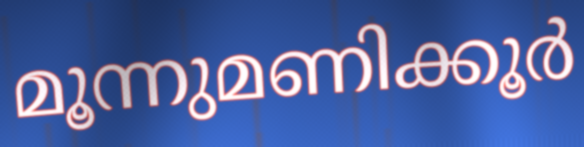
മൂന്നുമണിക്കൂർ